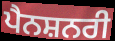
ਪੈਨਸ਼ਨਰੀ